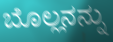
ಬೊಲ್ಲನನ್ನು